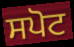
ਸਪੋਟ